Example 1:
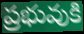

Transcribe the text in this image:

ప్రభువుకి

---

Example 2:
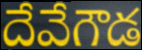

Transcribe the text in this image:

దేవేగౌడ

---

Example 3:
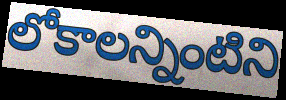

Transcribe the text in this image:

లోకాలన్నింటిని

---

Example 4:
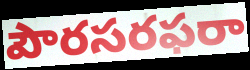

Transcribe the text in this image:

పౌరసరఫరా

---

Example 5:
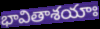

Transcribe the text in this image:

భావితాశయాః